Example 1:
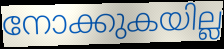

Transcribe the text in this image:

നോക്കുകയില്ല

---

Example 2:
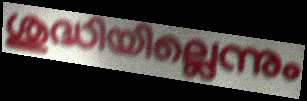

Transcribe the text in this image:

ശുദ്ധിയില്ലെന്നും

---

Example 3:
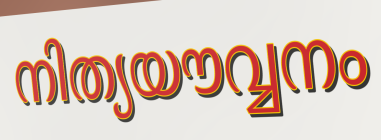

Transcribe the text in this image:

നിത്യയൗവ്വനം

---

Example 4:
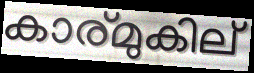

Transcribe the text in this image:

കാര്മുകില്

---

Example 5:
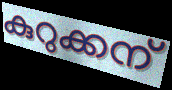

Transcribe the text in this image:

കുറുക്കന്